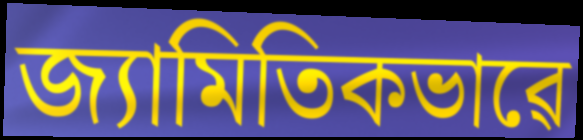
জ্যামিতিকভাৱে